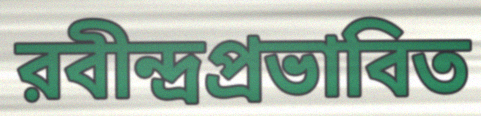
রবীন্দ্রপ্রভাবিত